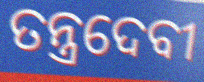
ତନ୍ତ୍ରଦେବୀ